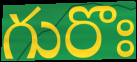
గురొః